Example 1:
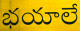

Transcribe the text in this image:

భయాలే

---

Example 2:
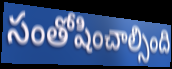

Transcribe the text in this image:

సంతోషించాల్సింది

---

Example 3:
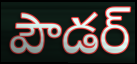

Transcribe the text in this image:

పౌడర్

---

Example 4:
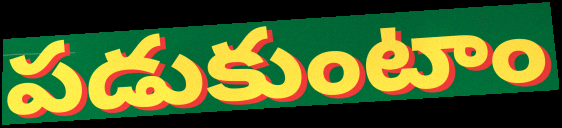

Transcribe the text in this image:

పడుకుంటాం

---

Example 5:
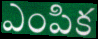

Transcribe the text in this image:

ఎంపిక